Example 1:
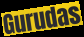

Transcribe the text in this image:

Gurudas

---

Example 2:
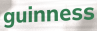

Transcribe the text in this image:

guinness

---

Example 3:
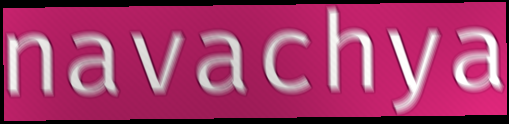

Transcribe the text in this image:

navachya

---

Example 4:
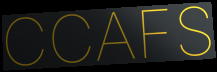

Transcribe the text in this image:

CCAFS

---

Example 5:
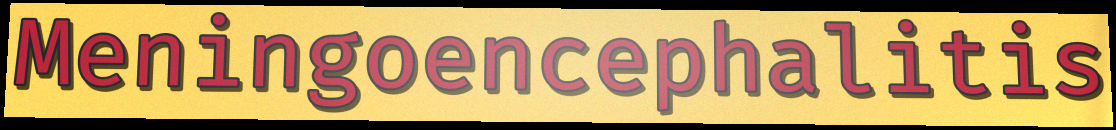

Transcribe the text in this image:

Meningoencephalitis